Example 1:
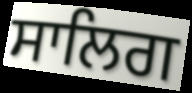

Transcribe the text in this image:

ਸਾਲਿਗ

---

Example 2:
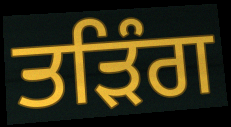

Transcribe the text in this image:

ਤੜਿੰਗ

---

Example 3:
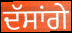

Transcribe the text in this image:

ਦੱਸਾਂਗੇ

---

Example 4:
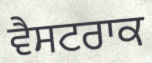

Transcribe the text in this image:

ਵੈਸਟਰਾਕ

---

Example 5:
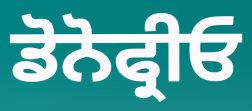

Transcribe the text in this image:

ਡੋਨੋਫ੍ਰੀਓ